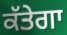
ਕੱਤੇਗਾ